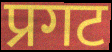
प्रगट